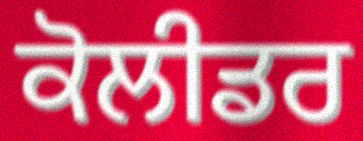
ਕੋਲੀਡਰ